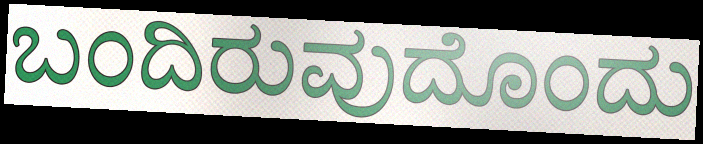
ಬಂದಿರುವುದೊಂದು